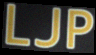
LJP